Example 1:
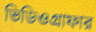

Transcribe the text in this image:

ভিডিওগ্রাফার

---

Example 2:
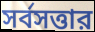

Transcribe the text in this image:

সর্বসত্তার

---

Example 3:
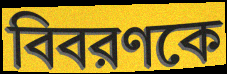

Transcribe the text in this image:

বিবরণকে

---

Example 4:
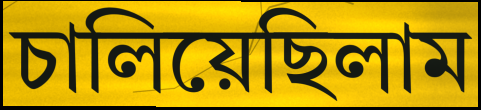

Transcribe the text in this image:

চালিয়েছিলাম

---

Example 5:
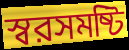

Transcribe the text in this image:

স্বরসমষ্টি